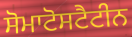
ਸੋਮਾਟੋਸਟੈਟੀਨ